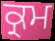
ਕ੍ਰਮ